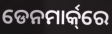
ଡେନମାର୍କ୍‌ରେ